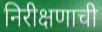
निरीक्षणाची